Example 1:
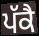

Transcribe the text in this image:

ਪੱਕੈ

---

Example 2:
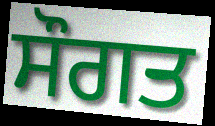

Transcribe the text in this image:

ਸੌਗਤ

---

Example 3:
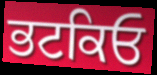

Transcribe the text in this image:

ਭਟਕਿਓ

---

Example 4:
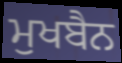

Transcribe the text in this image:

ਮੁਖਬੈਨ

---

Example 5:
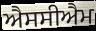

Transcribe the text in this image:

ਐਸਸੀਐਮ